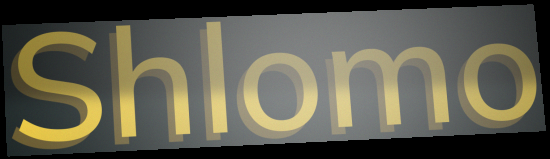
Shlomo